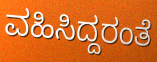
ವಹಿಸಿದ್ದರಂತೆ